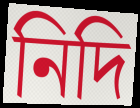
নিদি